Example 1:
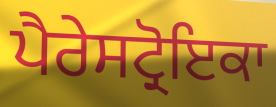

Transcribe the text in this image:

ਪੈਰੇਸਟ੍ਰੋਇਕਾ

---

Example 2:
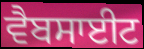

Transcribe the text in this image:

ਵੈਬਸਾਈਟ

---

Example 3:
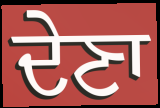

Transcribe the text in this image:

ਦੇਣਾ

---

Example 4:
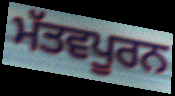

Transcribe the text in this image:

ਮੱਤਵਪੂਰਨ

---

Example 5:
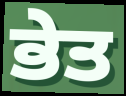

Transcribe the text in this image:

ਭੇਤ